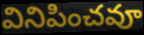
వినిపించవూ